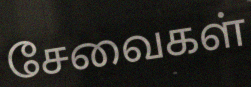
சேவைகள்